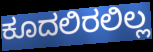
ಕೂದಲಿರಲಿಲ್ಲ